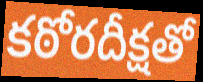
కఠోరదీక్షతో